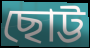
ছোট্ট